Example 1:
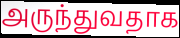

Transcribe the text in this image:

அருந்துவதாக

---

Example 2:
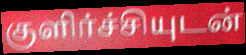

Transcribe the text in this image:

குளிர்ச்சியுடன்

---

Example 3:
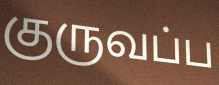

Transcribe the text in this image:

குருவப்ப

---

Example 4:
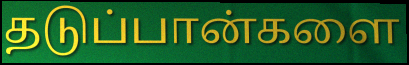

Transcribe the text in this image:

தடுப்பான்களை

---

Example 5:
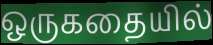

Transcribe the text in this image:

ஒருகதையில்